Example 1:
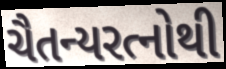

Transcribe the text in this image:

ચૈતન્યરત્નોથી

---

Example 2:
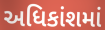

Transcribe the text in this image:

અધિકાંશમાં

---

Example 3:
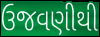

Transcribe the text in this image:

ઉજવણીથી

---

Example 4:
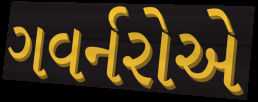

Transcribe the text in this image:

ગવર્નરોએ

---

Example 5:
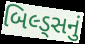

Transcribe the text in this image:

બિલ્ડ્સનું